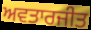
ਅਵਤਾਰਜੀਤ